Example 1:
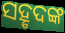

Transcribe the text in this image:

ସହୃଦଙ୍କ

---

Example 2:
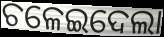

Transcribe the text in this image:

ଚଳେଇଦେଲା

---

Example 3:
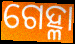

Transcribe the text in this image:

ଗେହ୍ଳା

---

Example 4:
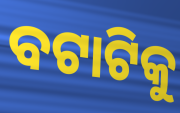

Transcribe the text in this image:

ବଟାଟିକୁ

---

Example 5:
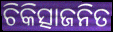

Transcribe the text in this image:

ଚିକିତ୍ସାଜନିତ